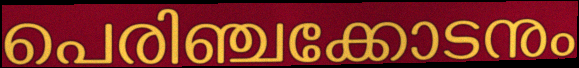
പെരിഞ്ചക്കോടനും